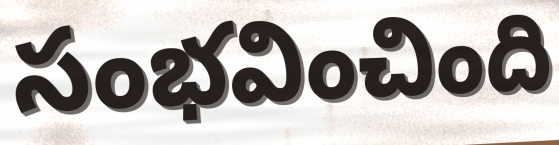
సంభవించింది